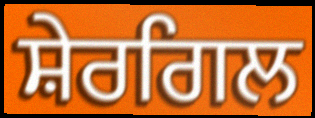
ਸ਼ੇਰਗਿਲ